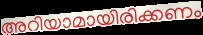
അറിയാമായിരിക്കണം